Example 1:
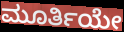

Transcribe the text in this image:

ಮೂರ್ತಿಯೇ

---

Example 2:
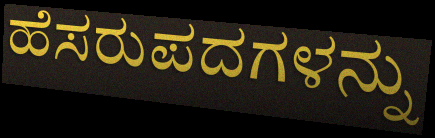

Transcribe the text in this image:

ಹೆಸರುಪದಗಳನ್ನು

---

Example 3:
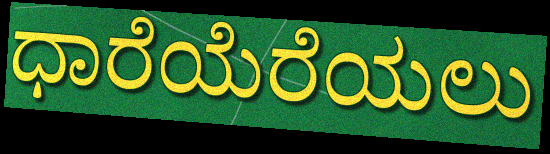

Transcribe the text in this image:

ಧಾರೆಯೆರೆಯಲು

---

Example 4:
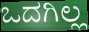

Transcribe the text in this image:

ಒದಗಿಲ್ಲ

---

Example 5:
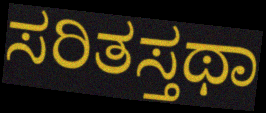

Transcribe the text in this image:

ಸರಿತಸ್ತಥಾ